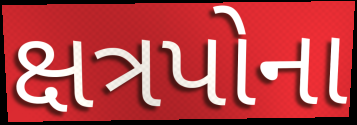
ક્ષત્રપોના